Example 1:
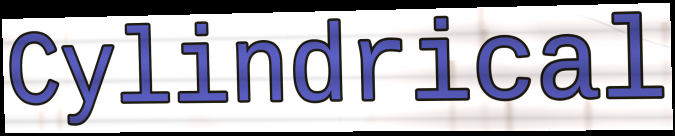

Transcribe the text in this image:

Cylindrical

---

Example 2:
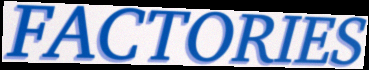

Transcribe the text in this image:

FACTORIES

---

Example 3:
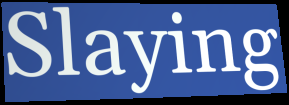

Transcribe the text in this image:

Slaying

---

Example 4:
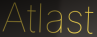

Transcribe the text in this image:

Atlast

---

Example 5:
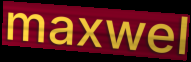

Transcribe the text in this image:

maxwel